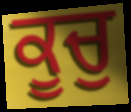
ਕੂਚੁ